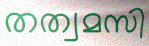
തത്വമസി